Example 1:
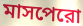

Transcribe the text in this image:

মাসপেরো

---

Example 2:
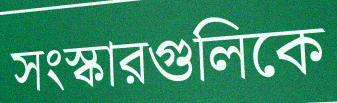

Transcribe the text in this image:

সংস্কারগুলিকে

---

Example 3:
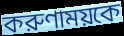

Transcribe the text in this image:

করুণাময়কে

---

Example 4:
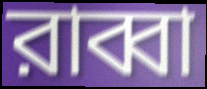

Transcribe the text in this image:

রাব্বা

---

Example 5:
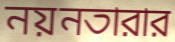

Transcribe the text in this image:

নয়নতারার